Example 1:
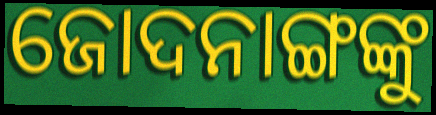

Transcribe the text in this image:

ଜୋଦନାଙ୍ଗଙ୍କୁ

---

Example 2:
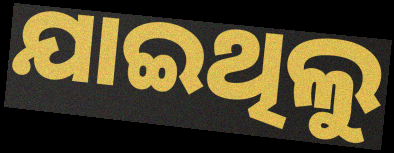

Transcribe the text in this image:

ଯାଇଥିଲୁ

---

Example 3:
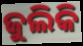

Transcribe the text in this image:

ଜୁଲିକି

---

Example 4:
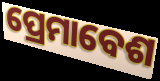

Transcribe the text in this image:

ପ୍ରେମାବେଶ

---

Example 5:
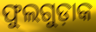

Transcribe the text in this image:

ଫୁଲଗୁଡ଼ାକ